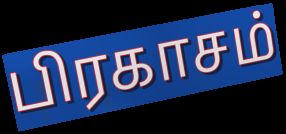
பிரகாசம்